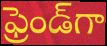
ఫ్రెండ్‌గా